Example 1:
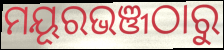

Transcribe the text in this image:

ମୟୂରଭଞ୍ଜଠାରୁ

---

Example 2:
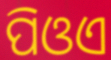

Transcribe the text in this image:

ପିଓଏ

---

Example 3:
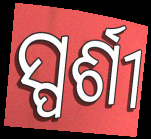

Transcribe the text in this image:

ସ୍ପର୍ଶୀ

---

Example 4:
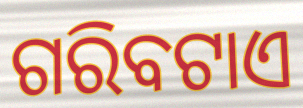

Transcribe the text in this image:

ଗରିବଟାଏ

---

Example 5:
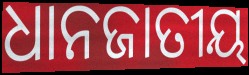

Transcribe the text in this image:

ଧାନଜାତୀୟ